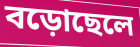
বড়োছেলে